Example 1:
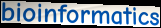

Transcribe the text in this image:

bioinformatics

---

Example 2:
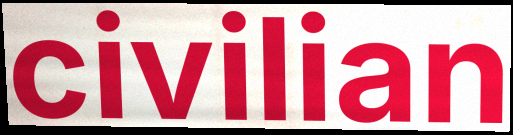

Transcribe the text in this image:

civilian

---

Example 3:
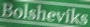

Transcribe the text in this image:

Bolsheviks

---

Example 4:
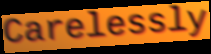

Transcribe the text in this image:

Carelessly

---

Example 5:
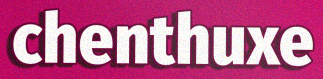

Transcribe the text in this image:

chenthuxe